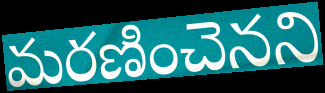
మరణించెనని